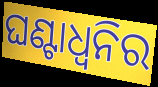
ଘଣ୍ଟାଧ୍ୱନିର